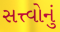
સત્ત્વોનું